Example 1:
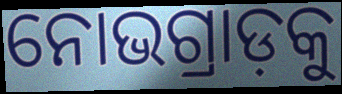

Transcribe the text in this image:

ନୋଭଗ୍ରାଡ଼କୁ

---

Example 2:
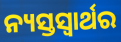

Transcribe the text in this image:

ନ୍ୟସ୍ତସ୍ଵାର୍ଥର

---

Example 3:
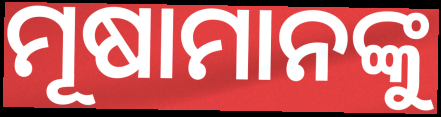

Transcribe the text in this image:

ମୂଷାମାନଙ୍କୁ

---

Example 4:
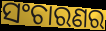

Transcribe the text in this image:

ସଂଚାରଣର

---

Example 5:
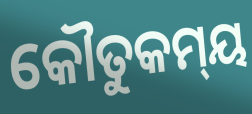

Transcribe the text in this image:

କୌତୁକମ୍‍ୟ